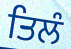
ਤਿਲੰ